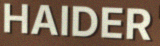
HAIDER